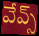
వేవ్స్